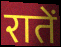
रातें